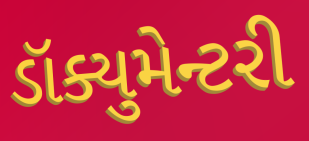
ડૉક્યુમેન્ટરી